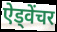
ऐड्वेंचर